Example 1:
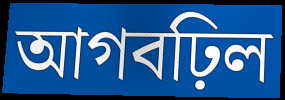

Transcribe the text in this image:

আগবঢ়িল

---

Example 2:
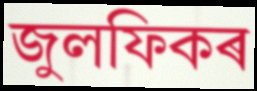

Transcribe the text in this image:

জুলফিকৰ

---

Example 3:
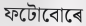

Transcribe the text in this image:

ফটোবোৰে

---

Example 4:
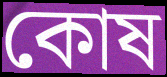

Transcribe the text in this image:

কোষ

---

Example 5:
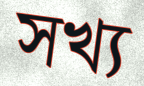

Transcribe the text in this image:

সখ্য